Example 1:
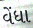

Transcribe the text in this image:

વેંધા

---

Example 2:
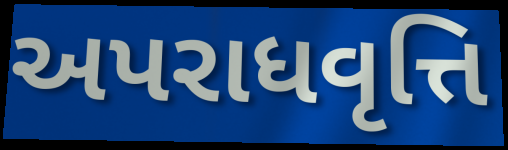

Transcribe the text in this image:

અપરાધવૃત્તિ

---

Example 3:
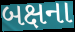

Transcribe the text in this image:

બક્ષના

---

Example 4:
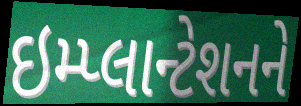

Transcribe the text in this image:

ઇમ્પ્લાન્ટેશનને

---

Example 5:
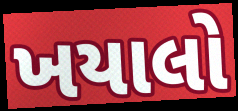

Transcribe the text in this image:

ખયાલો